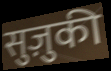
सुज़ुकी